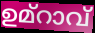
ഉമ്റാവ്